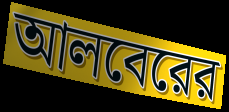
আলবেরের